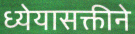
ध्येयासक्तीने